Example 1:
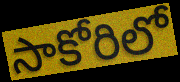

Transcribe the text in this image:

సాకోరిలో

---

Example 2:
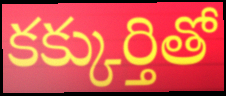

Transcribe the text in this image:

కక్కుర్తితో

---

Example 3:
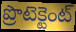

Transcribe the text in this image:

ప్రొటెక్టెంట్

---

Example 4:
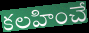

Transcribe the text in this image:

కలహించే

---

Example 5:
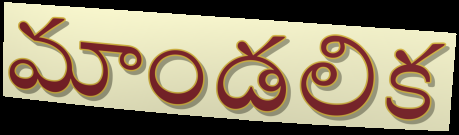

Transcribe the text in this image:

మాండలిక